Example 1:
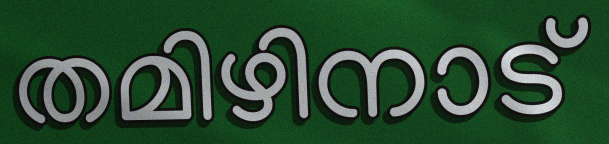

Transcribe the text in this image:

തമിഴിനാട്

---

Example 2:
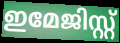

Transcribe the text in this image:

ഇമേജിസ്റ്റ്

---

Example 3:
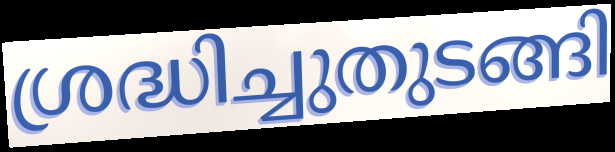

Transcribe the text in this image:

ശ്രദ്ധിച്ചുതുടങ്ങി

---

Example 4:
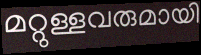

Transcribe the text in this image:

മറ്റുള്ളവരുമായി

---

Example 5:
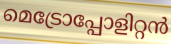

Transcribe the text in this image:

മെട്രോപ്പോളിറ്റൻ